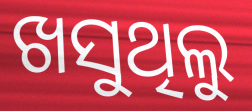
ଖସୁଥିଲୁ